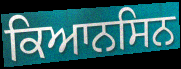
ਕਿਆਨਸਿਨ